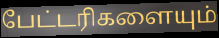
பேட்டரிகளையும்